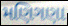
મણિગણા